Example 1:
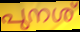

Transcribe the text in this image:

പുനശ്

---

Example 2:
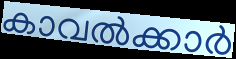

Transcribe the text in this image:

കാവൽക്കാർ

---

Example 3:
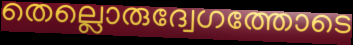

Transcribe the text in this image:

തെല്ലൊരുദ്വേഗത്തോടെ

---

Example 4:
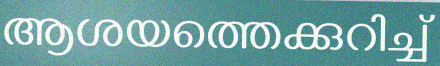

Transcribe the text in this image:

ആശയത്തെക്കുറിച്ച്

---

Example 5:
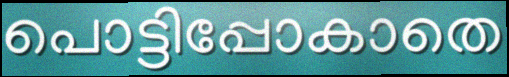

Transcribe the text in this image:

പൊട്ടിപ്പോകാതെ